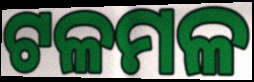
ଟଳମଳ